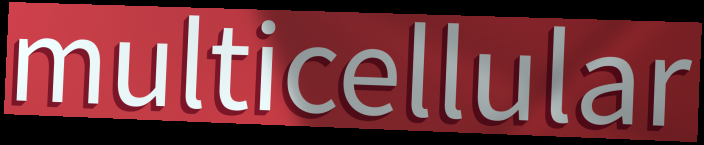
multicellular